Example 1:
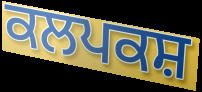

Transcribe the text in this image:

ਕਲਪਕਸ਼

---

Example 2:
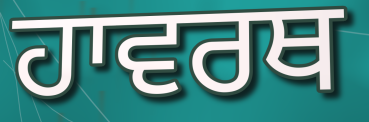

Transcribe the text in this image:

ਹਾਵਰਥ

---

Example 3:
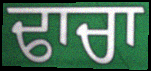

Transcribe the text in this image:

ਢਾਚਾ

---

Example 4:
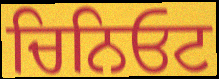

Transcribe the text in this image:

ਚਿਨਿਓਟ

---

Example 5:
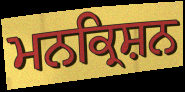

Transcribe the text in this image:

ਮਨਕ੍ਰਿਸ਼ਨ